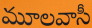
మూలవాసీ